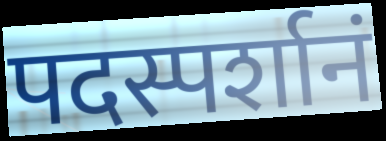
पदस्पर्शानं